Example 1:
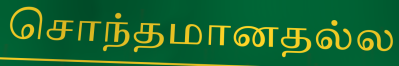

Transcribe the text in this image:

சொந்தமானதல்ல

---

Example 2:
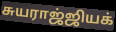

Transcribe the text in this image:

சுயராஜ்ஜியக்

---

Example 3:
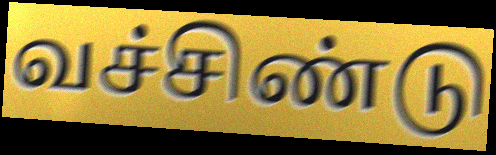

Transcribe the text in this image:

வச்சிண்டு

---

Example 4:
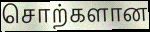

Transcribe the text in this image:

சொற்களான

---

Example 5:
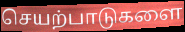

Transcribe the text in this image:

செயற்பாடுகளை